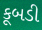
કૂબડી